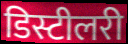
डिस्टीलरी